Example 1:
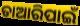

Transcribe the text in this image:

ତାଆରିପାଇଁ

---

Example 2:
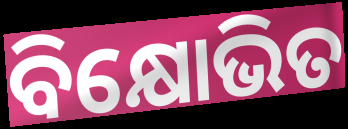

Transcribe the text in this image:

ବିକ୍ଷୋଭିତ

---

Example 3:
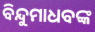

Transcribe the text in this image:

ବିନ୍ଦୁମାଧବଙ୍କ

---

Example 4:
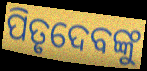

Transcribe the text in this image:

ପିତୃଦେବଙ୍କୁ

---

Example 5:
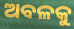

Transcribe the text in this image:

ଅବଳକୁ